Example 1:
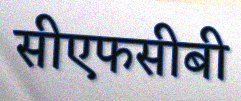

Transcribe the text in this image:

सीएफसीबी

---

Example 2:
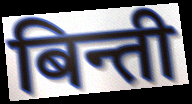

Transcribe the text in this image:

बिन्ती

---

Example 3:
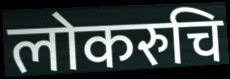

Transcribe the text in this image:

लोकरुचि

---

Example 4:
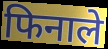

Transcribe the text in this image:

फिनाले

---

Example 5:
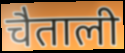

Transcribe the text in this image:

चैताली